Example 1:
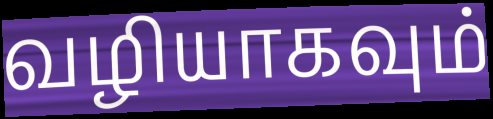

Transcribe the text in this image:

வழியாகவும்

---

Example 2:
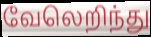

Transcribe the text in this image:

வேலெறிந்து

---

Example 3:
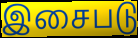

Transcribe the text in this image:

இசைபடு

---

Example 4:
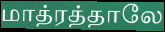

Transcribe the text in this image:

மாத்ரத்தாலே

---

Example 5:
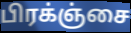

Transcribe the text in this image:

பிரக்ஞ்சை